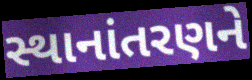
સ્થાનાંતરણને